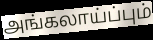
அங்கலாய்ப்பும்